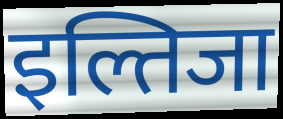
इल्तिजा